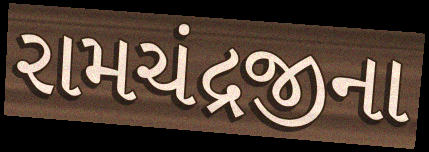
રામચંદ્રજીના